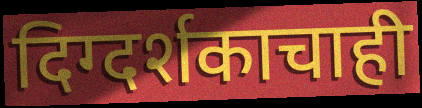
दिग्दर्शकाचाही